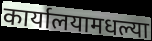
कार्यालयामधल्या